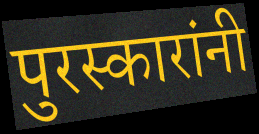
पुरस्कारांनी